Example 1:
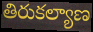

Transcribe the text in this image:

తిరుకల్యాణ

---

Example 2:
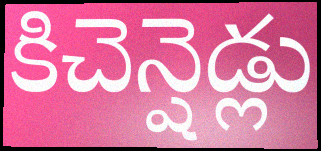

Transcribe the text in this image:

కిచెన్షెడ్లు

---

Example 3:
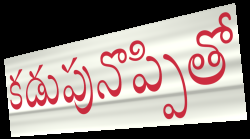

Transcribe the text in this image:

కడుపునొప్పితో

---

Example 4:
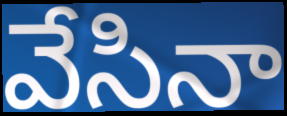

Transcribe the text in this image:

వేసినా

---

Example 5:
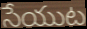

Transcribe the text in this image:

సేయుట